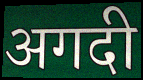
अगदी